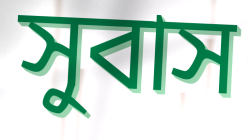
সুবাস